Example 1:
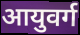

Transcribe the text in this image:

आयुवर्ग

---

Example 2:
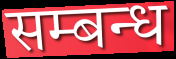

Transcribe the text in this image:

सम्बन्ध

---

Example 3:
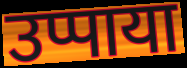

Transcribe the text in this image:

उप्पाया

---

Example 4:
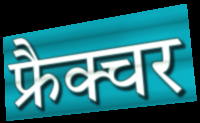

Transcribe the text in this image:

फ्रैक्चर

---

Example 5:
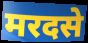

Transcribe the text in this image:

मरदसे